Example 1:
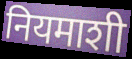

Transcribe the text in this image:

नियमाशी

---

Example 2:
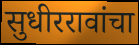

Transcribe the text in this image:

सुधीररावांचा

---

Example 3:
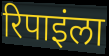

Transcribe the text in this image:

रिपाइंला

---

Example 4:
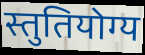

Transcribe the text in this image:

स्तुतियोग्य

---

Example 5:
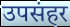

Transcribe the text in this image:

उपसंहर